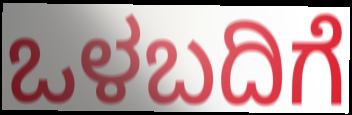
ಒಳಬದಿಗೆ